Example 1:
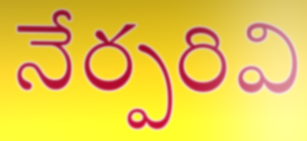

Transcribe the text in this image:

నేర్పరివి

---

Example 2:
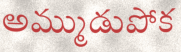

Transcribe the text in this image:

అమ్ముడుపోక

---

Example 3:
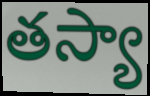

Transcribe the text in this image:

తస్యా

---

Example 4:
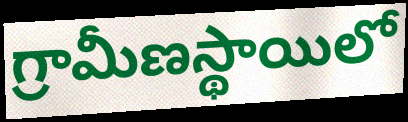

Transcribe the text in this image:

గ్రామీణస్థాయిలో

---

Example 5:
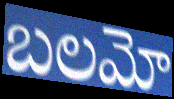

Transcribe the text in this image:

బలమో